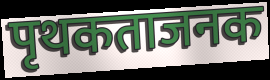
पृथकताजनक